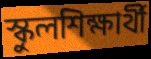
স্কুলশিক্ষার্থী